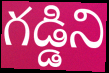
గడ్డిని